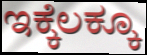
ಇಕ್ಕೆಲಕ್ಕೂ